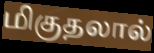
மிகுதலால்